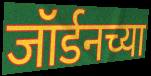
जॉर्डनच्या